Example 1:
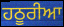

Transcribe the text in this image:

ਹਠੂਰੀਆ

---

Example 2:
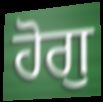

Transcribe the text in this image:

ਹੋਗੁ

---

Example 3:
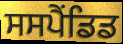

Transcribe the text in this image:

ਸਸਪੈਂਡਿਡ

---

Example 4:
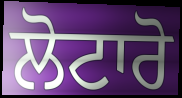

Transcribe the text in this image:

ਲੋਟਾਰੋ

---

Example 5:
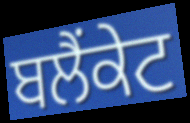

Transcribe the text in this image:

ਬਲੈਂਕੇਟ